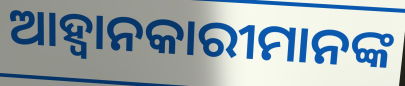
ଆହ୍ଵାନକାରୀମାନଙ୍କ